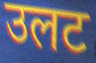
उलट